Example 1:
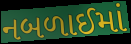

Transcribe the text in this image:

નબળાઈમાં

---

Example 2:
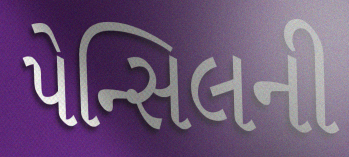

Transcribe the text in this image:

પેન્સિલની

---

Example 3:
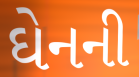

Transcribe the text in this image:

ઘેનની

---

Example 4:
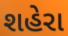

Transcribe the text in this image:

શહેરા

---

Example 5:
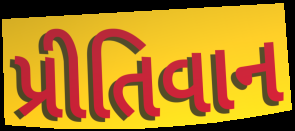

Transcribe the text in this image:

પ્રીતિવાન